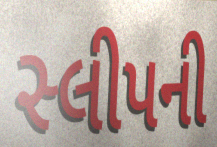
સ્લીપની